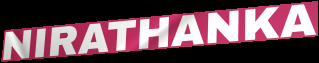
NIRATHANKA